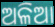
ଅଳିଆ